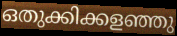
ഒതുക്കിക്കളഞ്ഞു